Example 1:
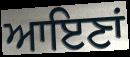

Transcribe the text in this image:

ਆਇਣਾਂ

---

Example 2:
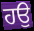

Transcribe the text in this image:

ਹਉ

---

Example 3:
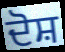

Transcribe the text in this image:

ਦੋਸ਼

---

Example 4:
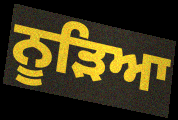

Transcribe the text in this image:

ਨੂੜਿਆ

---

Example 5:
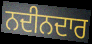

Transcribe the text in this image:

ਨਦੀਨਦਾਰ